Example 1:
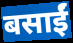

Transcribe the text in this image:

बसाईं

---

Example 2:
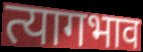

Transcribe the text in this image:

त्यागभाव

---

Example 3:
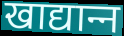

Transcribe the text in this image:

खाद्यान्‍न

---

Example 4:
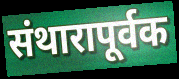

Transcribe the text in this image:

संथारापूर्वक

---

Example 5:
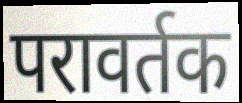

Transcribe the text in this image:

परावर्तक